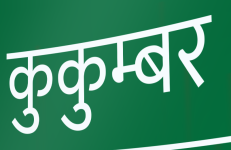
कुकुम्बर